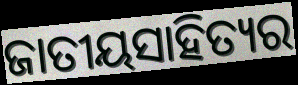
ଜାତୀୟସାହିତ୍ୟର